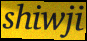
shiwji